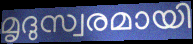
മൃദുസ്വരമായി